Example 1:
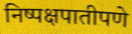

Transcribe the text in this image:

निष्पक्षपातीपणे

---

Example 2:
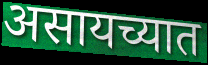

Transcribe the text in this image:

असायच्यात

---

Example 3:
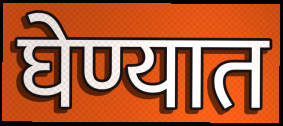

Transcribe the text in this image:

घेण्यात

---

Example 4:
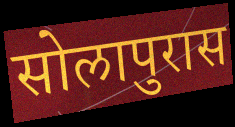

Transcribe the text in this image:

सोलापुरास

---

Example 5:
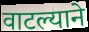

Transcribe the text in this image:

वाटल्याने